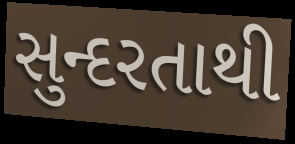
સુન્દરતાથી